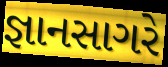
જ્ઞાનસાગરે